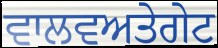
ਵਾਲਵਅਤੇਗੇਟ